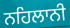
ਨਹਿਲਾਨੀ